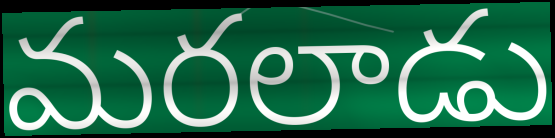
మరలాడు